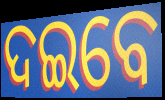
ଦଇବେ